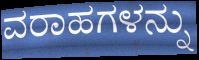
ವರಾಹಗಳನ್ನು